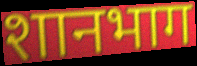
शानभाग